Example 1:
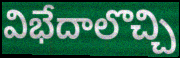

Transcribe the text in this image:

విభేదాలొచ్చి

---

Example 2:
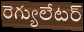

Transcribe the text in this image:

రెగ్యులేటర్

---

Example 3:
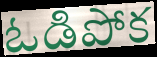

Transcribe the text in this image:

ఓడిపోక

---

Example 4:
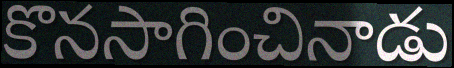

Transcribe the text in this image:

కొనసాగించినాడు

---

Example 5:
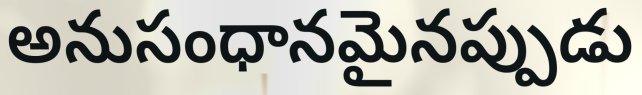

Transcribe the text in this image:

అనుసంధానమైనప్పుడు